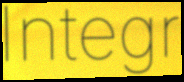
Integr